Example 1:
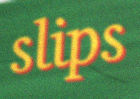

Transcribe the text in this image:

slips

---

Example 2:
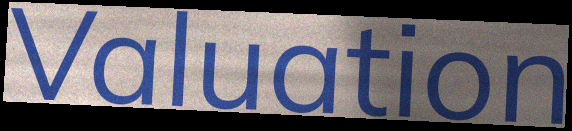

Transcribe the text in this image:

Valuation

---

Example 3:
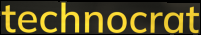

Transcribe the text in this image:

technocrat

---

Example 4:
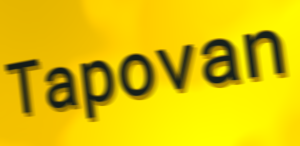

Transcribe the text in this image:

Tapovan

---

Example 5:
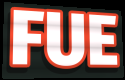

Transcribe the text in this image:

FUE